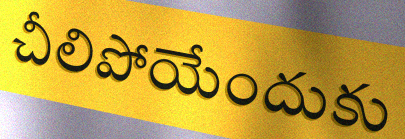
చీలిపోయేందుకు